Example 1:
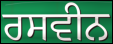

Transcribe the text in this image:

ਰਸਵੀਨ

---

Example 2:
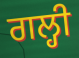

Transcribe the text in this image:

ਗਲ੍ਹੀ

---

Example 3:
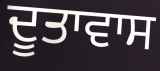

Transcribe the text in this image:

ਦੂਤਾਵਾਸ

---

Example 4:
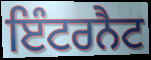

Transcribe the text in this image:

ਇੰਟਰਨੈਟ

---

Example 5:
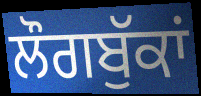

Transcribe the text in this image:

ਲੌਗਬੁੱਕਾਂ